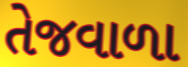
તેજવાળા